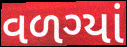
વળગ્યાં